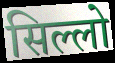
सिल्लो